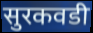
सुरकवडी